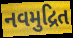
નવમુદ્રિત